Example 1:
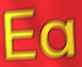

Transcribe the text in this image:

Ea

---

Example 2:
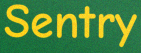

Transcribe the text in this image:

Sentry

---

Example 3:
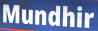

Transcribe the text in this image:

Mundhir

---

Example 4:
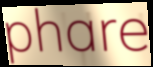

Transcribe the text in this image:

phare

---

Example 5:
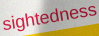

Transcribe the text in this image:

sightedness